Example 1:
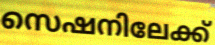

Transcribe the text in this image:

സെഷനിലേക്ക്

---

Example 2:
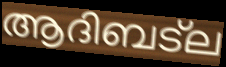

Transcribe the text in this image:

ആദിബട്ല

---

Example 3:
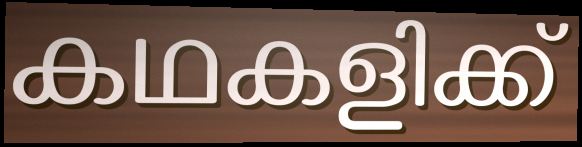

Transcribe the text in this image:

കഥകളിക്ക്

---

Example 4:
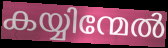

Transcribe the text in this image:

കയ്യിന്മേൽ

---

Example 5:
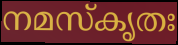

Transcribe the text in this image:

നമസ്കൃതഃ